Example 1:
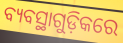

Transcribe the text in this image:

ବ୍ୟବସ୍ଥାଗୁଡ଼ିକରେ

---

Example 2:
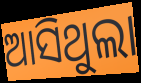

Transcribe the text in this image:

ଆସିଥୁଲା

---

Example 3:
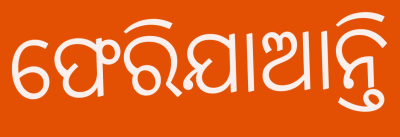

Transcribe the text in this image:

ଫେରିଯାଆନ୍ତି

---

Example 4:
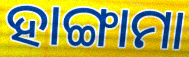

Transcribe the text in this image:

ହାଙ୍ଗାମା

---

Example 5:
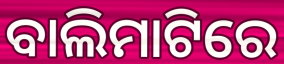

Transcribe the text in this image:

ବାଲିମାଟିରେ